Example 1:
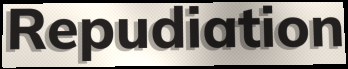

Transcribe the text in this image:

Repudiation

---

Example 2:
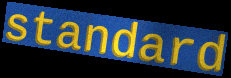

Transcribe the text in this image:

standard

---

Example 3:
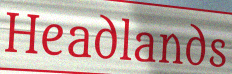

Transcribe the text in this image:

Headlands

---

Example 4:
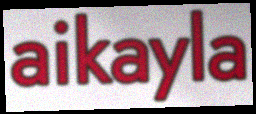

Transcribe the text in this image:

aikayla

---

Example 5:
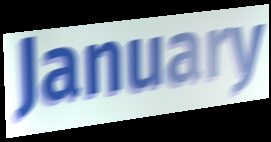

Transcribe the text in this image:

January